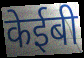
केईबी